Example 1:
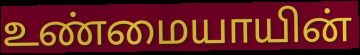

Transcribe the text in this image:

உண்மையாயின்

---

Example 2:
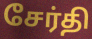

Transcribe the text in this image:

சேர்தி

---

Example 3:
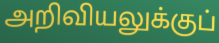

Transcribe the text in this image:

அறிவியலுக்குப்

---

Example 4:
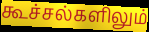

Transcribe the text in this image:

கூச்சல்களிலும்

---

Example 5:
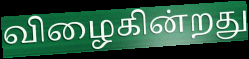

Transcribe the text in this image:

விழைகின்றது